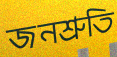
জনশ্রুতি